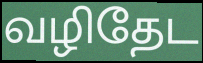
வழிதேட